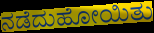
ನಡೆದುಹೋಯಿತು